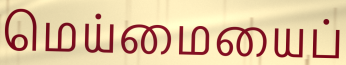
மெய்மையைப்